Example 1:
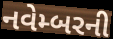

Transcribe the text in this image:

નવેમ્બરની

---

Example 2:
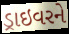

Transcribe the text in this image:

ડ્રાઇવરને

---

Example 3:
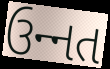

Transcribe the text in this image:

ઉન્‍નત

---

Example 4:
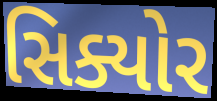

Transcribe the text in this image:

સિક્યોર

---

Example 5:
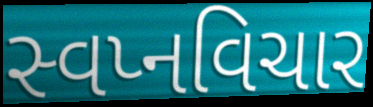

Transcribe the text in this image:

સ્વપ્નવિચાર